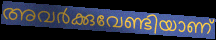
അവർക്കുവേണ്ടിയാണ്